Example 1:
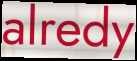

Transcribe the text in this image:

alredy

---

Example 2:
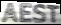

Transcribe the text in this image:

AEST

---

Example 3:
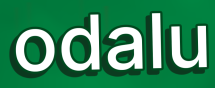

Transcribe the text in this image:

odalu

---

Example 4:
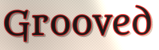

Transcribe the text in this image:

Grooved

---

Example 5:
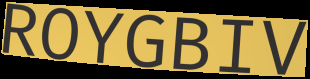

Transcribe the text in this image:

ROYGBIV